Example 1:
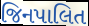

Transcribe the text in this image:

જિનપાલિત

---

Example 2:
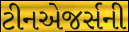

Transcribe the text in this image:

ટીનએજર્સની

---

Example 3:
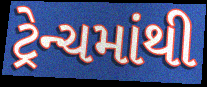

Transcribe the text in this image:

ટ્રેન્ચમાંથી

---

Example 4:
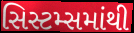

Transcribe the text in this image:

સિસ્ટમ્સમાંથી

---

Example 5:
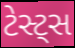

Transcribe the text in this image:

ટેસ્ટ્સ